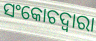
ସଂକୋଚଦ୍ୱାରା